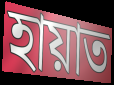
হায়াত